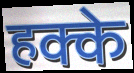
हक्के